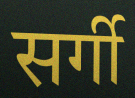
सर्गी